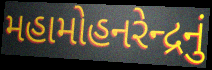
મહામોહનરેન્દ્રનું